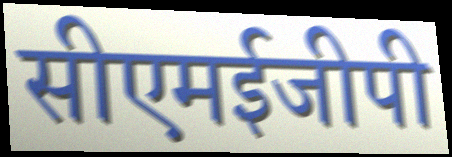
सीएमईजीपी